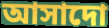
আসাদো